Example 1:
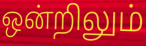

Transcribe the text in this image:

ஒன்றிலும்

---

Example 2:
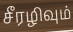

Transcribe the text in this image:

சீரழிவும்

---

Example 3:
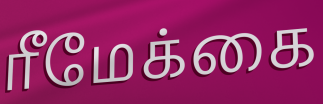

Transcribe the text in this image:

ரீமேக்கை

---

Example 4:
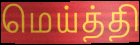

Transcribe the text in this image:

மெய்த்தி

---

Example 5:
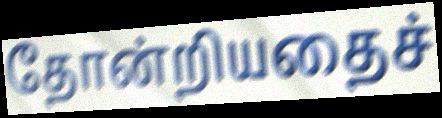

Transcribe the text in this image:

தோன்றியதைச்